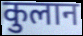
कुलान